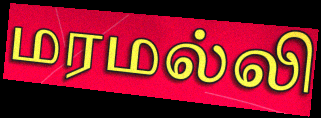
மரமல்லி